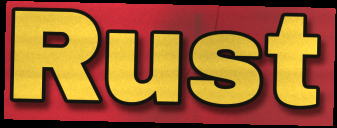
Rust